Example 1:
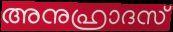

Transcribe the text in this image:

അനുഹ്രാദസ്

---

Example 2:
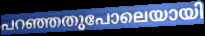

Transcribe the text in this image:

പറഞ്ഞതുപോലെയായി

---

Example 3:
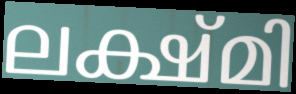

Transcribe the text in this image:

ലക്ഷ്‌മി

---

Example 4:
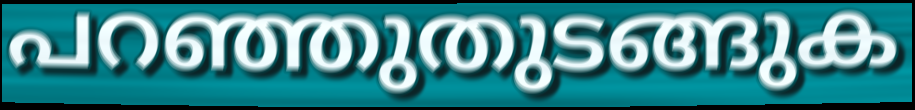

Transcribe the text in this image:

പറഞ്ഞുതുടങ്ങുക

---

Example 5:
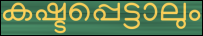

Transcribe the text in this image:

കഷ്ടപ്പെട്ടാലും